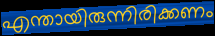
എന്തായിരുന്നിരിക്കണം